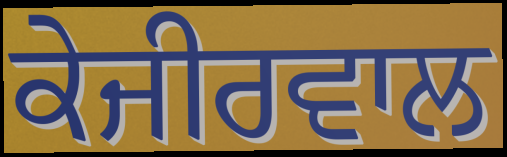
ਕੇਜੀਰਵਾਲ